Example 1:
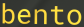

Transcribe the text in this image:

bento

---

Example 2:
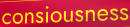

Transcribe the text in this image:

consiousness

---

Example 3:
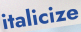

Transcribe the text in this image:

italicize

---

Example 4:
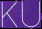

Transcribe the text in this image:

KU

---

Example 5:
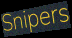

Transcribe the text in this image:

Snipers